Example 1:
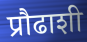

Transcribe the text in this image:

प्रौढाशी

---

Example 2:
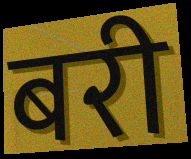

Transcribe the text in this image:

बरी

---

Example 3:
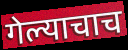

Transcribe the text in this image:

गेल्याचाच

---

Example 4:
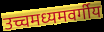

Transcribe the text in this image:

उच्चमध्यमवर्गीय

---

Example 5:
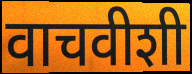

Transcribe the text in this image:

वाचवीशी